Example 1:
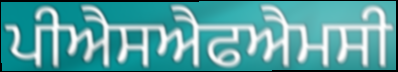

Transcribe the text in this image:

ਪੀਐਸਐਫਐਮਸੀ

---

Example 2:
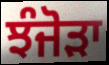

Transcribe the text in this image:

ਝੰਜੋੜਾ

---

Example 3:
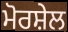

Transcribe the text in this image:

ਮੋਰਸ਼ੇਲ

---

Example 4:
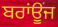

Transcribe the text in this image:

ਬਰਾਂਊਂਜ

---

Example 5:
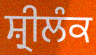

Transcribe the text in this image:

ਸ਼੍ਰੀਲੰਕ